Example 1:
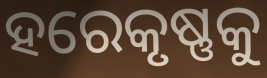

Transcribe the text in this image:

ହରେକୃଷ୍ଣକୁ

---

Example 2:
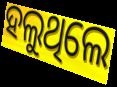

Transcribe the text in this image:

ହଲୁଥିଲେ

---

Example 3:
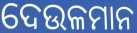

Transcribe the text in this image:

ଦେଉଳମାନ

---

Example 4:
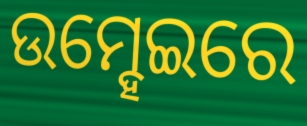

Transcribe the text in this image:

ଉମ୍ହେଇରେ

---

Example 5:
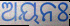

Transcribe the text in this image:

ଅୟନଃ